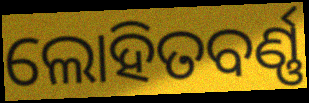
ଲୋହିତବର୍ଣ୍ଣ